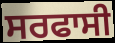
ਸਰਫਾਸੀ